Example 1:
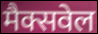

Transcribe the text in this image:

मैक्सवेल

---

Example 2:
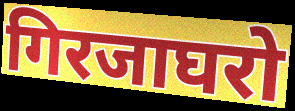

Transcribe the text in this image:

गिरजाघरो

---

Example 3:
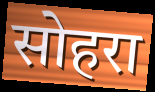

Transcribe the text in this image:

सोहरा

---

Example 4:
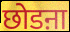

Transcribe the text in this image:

छोडऩा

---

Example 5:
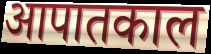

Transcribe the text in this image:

आपातकाल